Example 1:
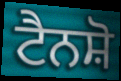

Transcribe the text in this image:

ਟੈਨਸ਼ੋ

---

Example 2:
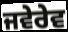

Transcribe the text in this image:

ਜਵੇਰੇਵ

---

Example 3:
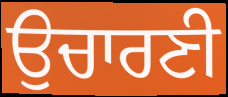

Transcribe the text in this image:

ਉਚਾਰਣੀ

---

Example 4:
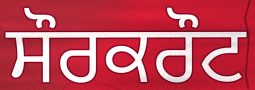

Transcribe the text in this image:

ਸੌਰਕਰੌਟ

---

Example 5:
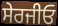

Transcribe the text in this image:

ਸੇਰਜੀਓ